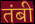
तंबी